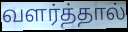
வளர்த்தால்